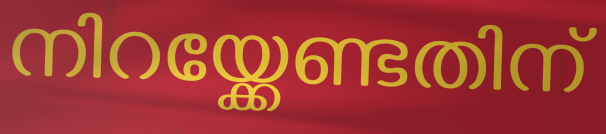
നിറയ്ക്കേണ്ടതിന്